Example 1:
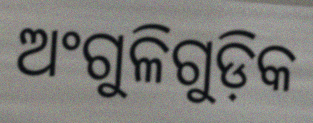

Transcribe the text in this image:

ଅଂଗୁଳିଗୁଡ଼ିକ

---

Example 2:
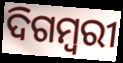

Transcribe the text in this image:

ଦିଗମ୍ୱରୀ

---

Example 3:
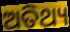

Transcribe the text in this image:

ଅତିଥ୍ୟ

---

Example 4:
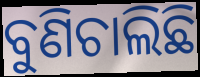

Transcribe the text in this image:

ବୁଣିଚାଲିଛି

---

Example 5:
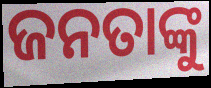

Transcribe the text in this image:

ଜନତାଙ୍କୁ